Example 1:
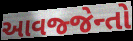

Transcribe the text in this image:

આવજ્જેન્તો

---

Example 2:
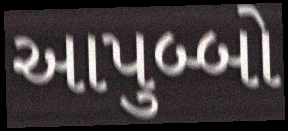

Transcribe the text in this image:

આપુબ્બો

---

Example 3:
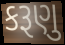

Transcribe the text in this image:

કરૂણુ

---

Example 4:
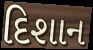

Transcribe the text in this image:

દિશાન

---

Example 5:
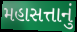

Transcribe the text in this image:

મહાસત્તાનું